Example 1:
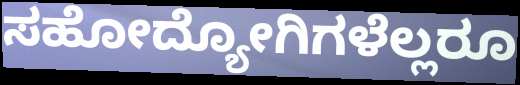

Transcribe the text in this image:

ಸಹೋದ್ಯೋಗಿಗಳೆಲ್ಲರೂ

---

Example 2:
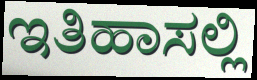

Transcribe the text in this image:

ಇತಿಹಾಸಲ್ಲಿ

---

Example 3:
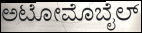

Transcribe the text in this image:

ಅಟೋಮೊಬೈಲ್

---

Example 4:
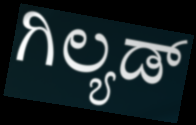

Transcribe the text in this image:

ಗಿಲ್ಯಡ್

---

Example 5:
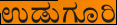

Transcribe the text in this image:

ಉಡುಗೂರಿ